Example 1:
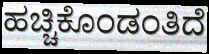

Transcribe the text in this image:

ಹಚ್ಚಿಕೊಂಡಂತಿದೆ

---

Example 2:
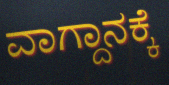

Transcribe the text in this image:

ವಾಗ್ದಾನಕ್ಕೆ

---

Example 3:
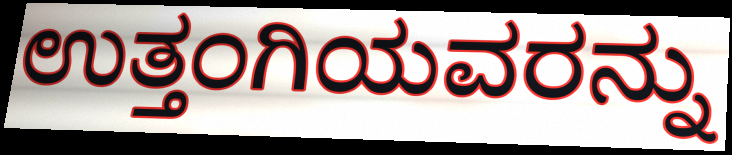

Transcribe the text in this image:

ಉತ್ತಂಗಿಯವರನ್ನು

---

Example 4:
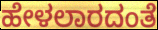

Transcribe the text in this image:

ಹೇಳಲಾರದಂತೆ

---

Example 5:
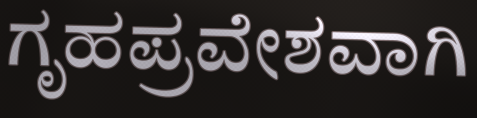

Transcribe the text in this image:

ಗೃಹಪ್ರವೇಶವಾಗಿ